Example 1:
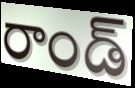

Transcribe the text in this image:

రాండ్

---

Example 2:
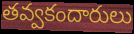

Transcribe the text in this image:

తవ్వకందారులు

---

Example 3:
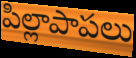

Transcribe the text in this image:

పిల్లాపాపలు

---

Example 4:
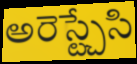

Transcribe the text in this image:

అరెస్ట్చేసి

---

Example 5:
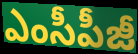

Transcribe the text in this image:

ఎంసీపీజీ